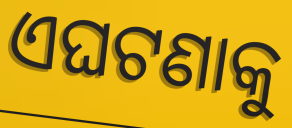
ଏଘଟଣାକୁ